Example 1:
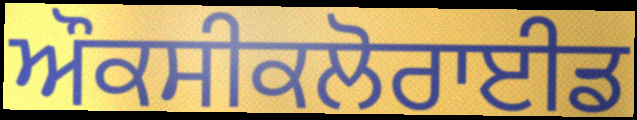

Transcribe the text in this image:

ਔਕਸੀਕਲੋਰਾਈਡ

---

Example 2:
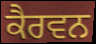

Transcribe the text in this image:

ਕੈਰਵਨ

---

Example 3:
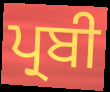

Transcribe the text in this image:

ਪ੍ਰਬੀ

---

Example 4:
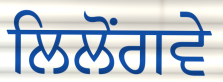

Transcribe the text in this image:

ਲਿਲੋਂਗਵੇ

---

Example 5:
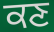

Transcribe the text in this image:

ਕਣ